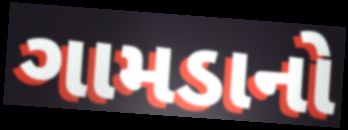
ગામડાનો